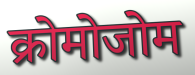
क्रोमोजोम